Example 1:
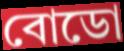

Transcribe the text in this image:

বোডো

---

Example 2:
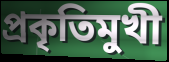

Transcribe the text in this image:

প্রকৃতিমুখী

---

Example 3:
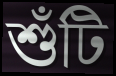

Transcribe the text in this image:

শুঁটি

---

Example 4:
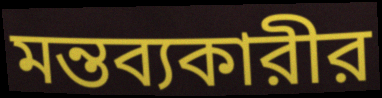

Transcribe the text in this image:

মন্তব্যকারীর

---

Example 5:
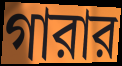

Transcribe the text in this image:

গারার